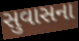
સુવાસના